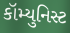
કૉમ્યુનિસ્ટ